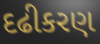
દઢીકરણ